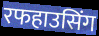
रफहाउसिंग